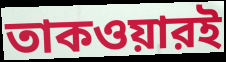
তাকওয়ারই